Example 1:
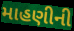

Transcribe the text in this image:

માહણીની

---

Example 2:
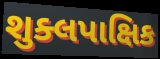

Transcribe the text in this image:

શુક્લપાક્ષિક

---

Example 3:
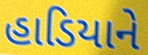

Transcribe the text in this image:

હાડિયાને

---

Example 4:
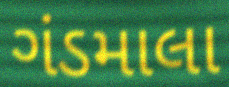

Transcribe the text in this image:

ગંડમાલા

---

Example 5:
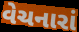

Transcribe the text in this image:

વેચનારાં